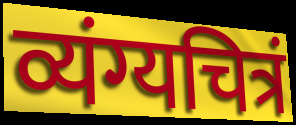
व्यंग्यचित्रं